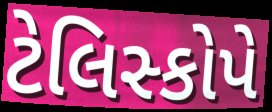
ટેલિસ્કોપે